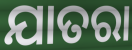
ଯାତରା